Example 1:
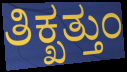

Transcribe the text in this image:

ತಿಕ್ಖತ್ತುಂ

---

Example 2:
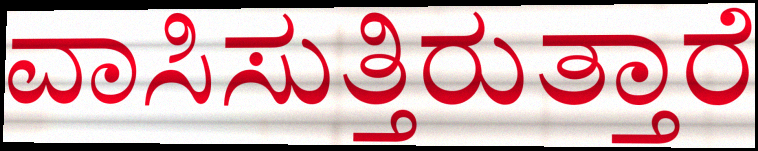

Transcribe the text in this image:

ವಾಸಿಸುತ್ತಿರುತ್ತಾರೆ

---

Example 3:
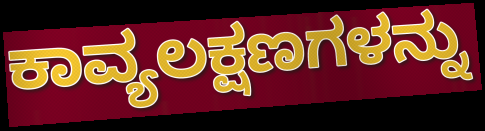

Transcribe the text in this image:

ಕಾವ್ಯಲಕ್ಷಣಗಳನ್ನು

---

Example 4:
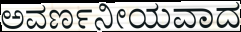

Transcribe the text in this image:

ಅವರ್ಣನೀಯವಾದ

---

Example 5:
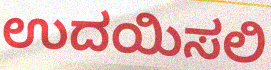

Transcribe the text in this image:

ಉದಯಿಸಲಿ